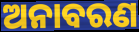
ଅନାବରଣ